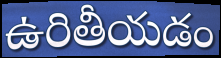
ఉరితీయడం